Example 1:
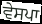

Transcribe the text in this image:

ਵੇਸਪਾ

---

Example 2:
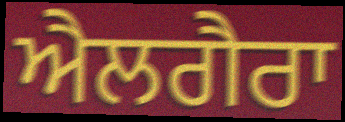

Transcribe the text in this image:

ਐਲਗੈਰਾ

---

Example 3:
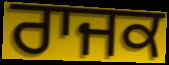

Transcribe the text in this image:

ਰਾਜਕ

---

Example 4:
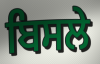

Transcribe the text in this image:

ਬਿਸਲੇ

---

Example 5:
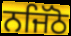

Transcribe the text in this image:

ਨਜਿੱਠੋ